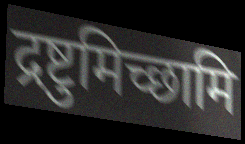
द्रष्टुमिच्छामि